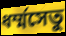
ধর্ম্মসেতু